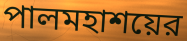
পালমহাশয়ের